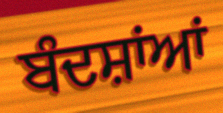
ਬੰਦਸ਼ਾਂਆਂ